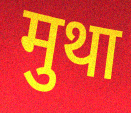
मुथा